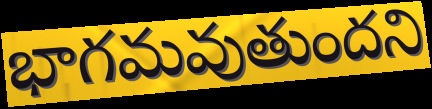
భాగమవుతుందని